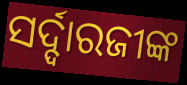
ସର୍ଦ୍ଦାରଜୀଙ୍କ